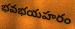
భవభయహరం